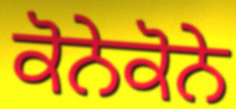
ਕੋਨੇਕੋਨੇ